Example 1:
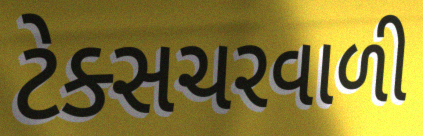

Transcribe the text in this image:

ટેક્સચરવાળી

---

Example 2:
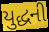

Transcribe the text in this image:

યુદ્ધની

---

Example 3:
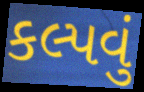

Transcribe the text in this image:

કલ્પવું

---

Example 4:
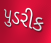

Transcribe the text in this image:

પુડરીક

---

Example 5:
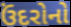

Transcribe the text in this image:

ઉંદરોનો